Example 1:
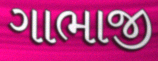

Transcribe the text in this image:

ગાભાજી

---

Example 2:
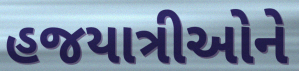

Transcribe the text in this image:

હજયાત્રીઓને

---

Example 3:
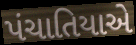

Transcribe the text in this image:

પંચાતિયાએ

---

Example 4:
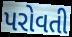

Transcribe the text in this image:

પરોવતી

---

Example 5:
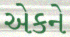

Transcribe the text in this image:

એકને